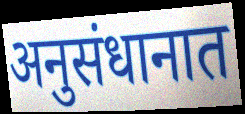
अनुसंधानात